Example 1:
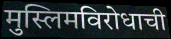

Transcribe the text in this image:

मुस्लिमविरोधाची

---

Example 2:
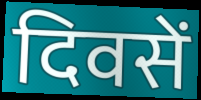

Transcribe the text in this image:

दिवसें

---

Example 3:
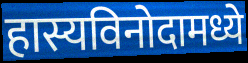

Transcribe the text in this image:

हास्यविनोदामध्ये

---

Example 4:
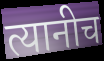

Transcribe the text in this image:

त्यानीच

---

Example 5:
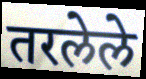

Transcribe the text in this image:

तरलेले